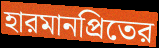
হারমানপ্রিতের